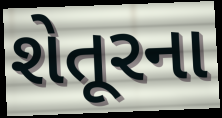
શેતૂરના